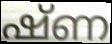
ഷ്ണ